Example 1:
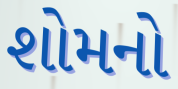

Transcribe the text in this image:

શોમનો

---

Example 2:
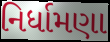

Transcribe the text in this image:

નિર્ધામણા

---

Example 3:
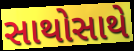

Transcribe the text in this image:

સાથોસાથે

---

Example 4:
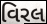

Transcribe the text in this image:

વિરલ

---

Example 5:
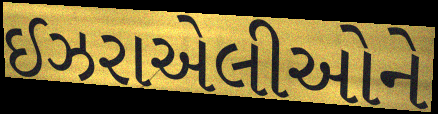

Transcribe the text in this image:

ઈઝરાએલીઓને